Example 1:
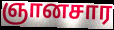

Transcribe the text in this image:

ஞானசார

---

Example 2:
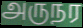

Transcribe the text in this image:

அருநர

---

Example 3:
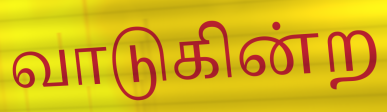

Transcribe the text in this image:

வாடுகின்ற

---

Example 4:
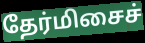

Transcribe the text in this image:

தேர்மிசைச்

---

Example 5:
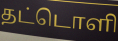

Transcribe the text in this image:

தட்டொளி